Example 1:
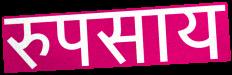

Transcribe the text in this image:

रुपसाय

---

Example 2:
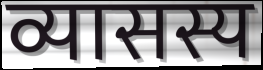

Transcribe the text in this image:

व्यासस्य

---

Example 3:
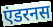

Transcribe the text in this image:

एंडरनस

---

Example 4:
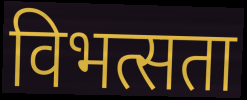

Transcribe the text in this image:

विभत्सता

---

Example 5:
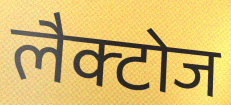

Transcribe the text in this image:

लैक्‍टोज